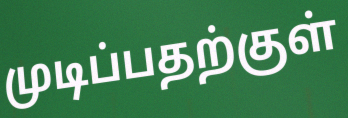
முடிப்பதற்குள்